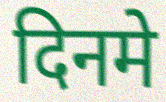
दिनमे